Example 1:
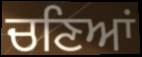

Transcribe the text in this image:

ਚਣਿਆਂ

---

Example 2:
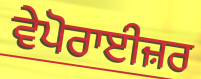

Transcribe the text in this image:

ਵੇਪੋਰਾਈਜ਼ਰ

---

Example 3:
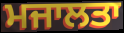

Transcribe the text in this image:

ਮਜਾਲਤਾ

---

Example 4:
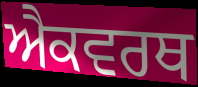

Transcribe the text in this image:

ਐਕਵਰਥ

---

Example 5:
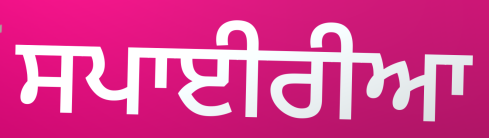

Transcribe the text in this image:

ਸਪਾਈਰੀਆ